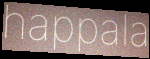
happala